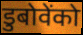
डुबोवेंको